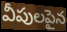
వీపులపైన